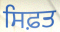
ਸਿਫ਼ਤ